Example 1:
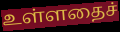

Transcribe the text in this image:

உள்ளதைச்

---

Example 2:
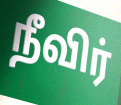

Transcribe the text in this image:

நீவிர்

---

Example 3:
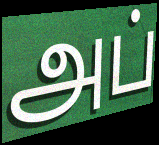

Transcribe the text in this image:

அப்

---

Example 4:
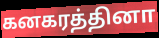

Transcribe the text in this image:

கனகரத்தினா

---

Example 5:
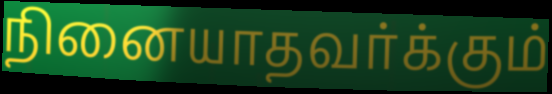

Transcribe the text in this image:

நினையாதவர்க்கும்